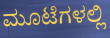
ಮೂಟೆಗಳಲ್ಲಿ